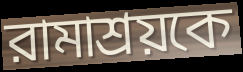
রামাশ্রয়কে